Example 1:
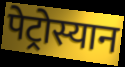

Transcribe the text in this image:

पेट्रोस्यान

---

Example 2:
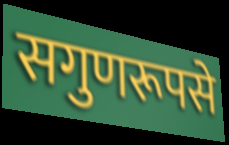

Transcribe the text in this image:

सगुणरूपसे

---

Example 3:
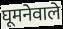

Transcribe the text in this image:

घूमनेवाले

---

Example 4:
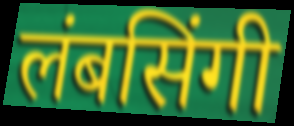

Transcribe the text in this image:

लंबसिंगी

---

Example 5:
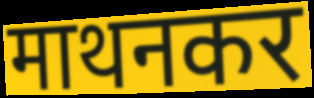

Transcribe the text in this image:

माथनकर